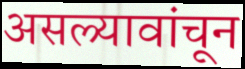
असल्यावांचून